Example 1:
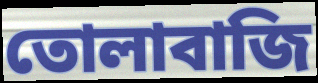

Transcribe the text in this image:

তোলাবাজি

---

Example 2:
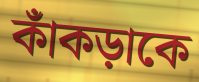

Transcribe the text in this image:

কাঁকড়াকে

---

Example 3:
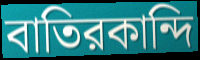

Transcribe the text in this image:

বাতিরকান্দি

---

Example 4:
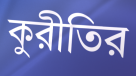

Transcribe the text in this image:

কুরীতির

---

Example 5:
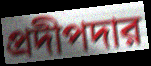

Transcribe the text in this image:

প্রদীপদার